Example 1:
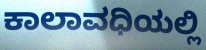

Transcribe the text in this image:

ಕಾಲಾವಧಿಯಲ್ಲಿ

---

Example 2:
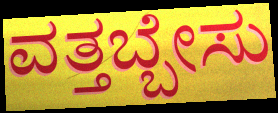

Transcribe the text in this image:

ವತ್ತಬ್ಬೇಸು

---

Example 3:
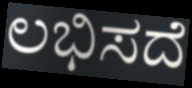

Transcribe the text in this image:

ಲಭಿಸದೆ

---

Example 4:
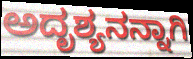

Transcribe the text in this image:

ಅದೃಶ್ಯನನ್ನಾಗಿ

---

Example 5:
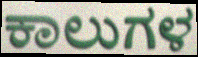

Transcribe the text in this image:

ಕಾಲುಗಳ